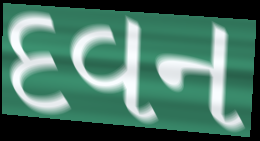
દવન